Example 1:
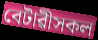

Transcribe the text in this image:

বেটাৱীসকল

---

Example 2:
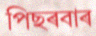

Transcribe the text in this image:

পিছৰবাৰ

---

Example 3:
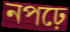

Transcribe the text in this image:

নপঢ়ে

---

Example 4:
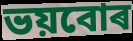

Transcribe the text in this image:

ভয়বোৰ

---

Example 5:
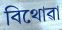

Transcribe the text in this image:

বিথোৱা